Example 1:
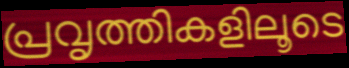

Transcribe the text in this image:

പ്രവൃത്തികളിലൂടെ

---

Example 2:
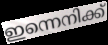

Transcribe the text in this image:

ഇന്നെനിക്ക്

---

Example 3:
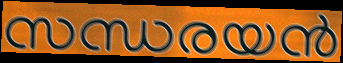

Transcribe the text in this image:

സന്ധരയൻ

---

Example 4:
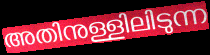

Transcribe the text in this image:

അതിനുള്ളിലിടുന്ന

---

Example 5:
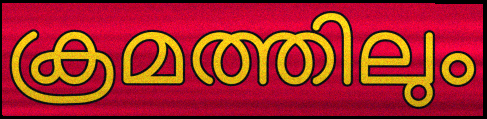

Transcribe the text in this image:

ക്രമത്തിലും